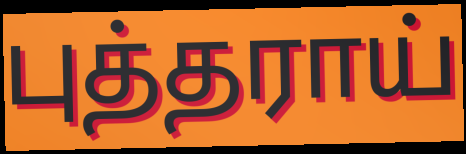
புத்தராய்